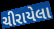
ચીરાયેલા